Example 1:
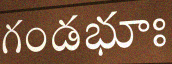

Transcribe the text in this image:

గండభూః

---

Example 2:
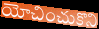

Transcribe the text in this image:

యోచించుకొని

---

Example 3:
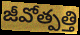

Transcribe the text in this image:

జీవోత్పత్తి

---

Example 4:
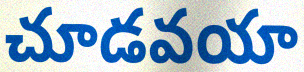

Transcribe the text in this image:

చూడవయా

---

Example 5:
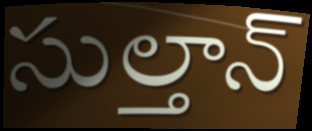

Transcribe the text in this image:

సుల్తాన్